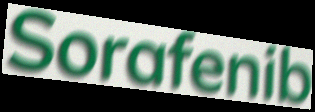
Sorafenib